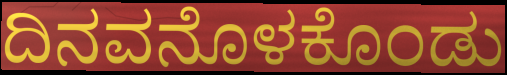
ದಿನವನೊಳಕೊಂಡು